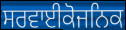
ਸਰਵਾਈਕੋਜਨਿਕ